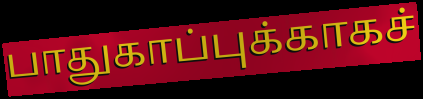
பாதுகாப்புக்காகச்